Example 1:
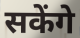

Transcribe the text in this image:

सकेंगे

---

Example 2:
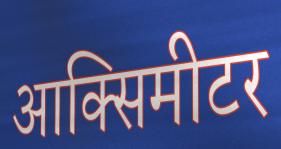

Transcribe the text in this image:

आक्सिमीटर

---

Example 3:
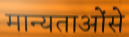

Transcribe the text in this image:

मान्यताओंसे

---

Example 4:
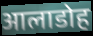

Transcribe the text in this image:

आलाडोह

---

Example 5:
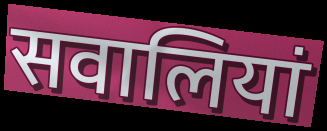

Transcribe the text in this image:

सवालियां